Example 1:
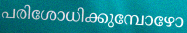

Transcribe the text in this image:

പരിശോധിക്കുമ്പോഴോ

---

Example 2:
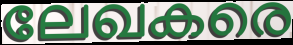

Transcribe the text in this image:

ലേഖകരെ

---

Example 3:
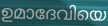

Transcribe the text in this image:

ഉമാദേവിയെ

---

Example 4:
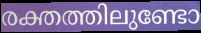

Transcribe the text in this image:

രക്തത്തിലുണ്ടോ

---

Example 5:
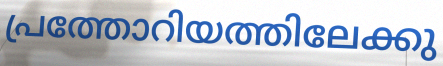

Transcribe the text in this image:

പ്രത്തോറിയത്തിലേക്കു